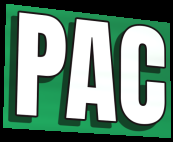
PAC